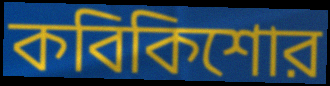
কবিকিশোর